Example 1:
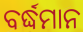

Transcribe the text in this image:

ବର୍ଦ୍ଧମାନ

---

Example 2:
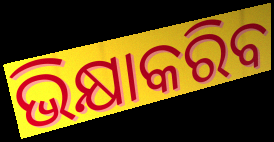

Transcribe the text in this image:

ଭିକ୍ଷାକରିବ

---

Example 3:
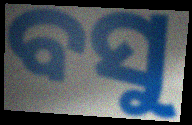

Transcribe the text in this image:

ବସୁ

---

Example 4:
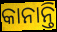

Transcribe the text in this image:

କାନାନ୍ତି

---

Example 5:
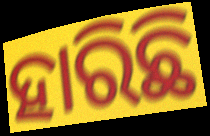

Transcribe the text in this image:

ହାରିଛି